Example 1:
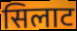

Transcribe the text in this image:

सिलाट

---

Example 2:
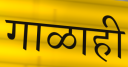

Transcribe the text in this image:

गाळाही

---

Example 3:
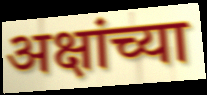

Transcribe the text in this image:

अक्षांच्या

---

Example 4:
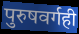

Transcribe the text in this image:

पुरुषवर्गही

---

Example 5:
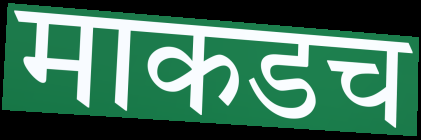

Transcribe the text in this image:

माकडच